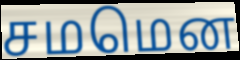
சமமென